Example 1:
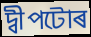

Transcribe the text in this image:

দ্বীপটোৰ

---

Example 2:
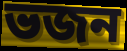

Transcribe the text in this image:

ভজন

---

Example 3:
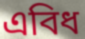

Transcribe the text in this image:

এবিধ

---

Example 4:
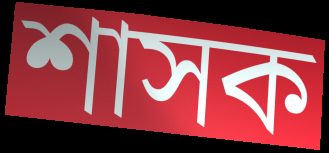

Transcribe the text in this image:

শাসক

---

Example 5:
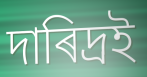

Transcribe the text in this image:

দাৰিদ্ৰই